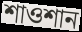
শাওশান